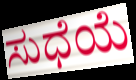
ಸುಧೆಯೆ